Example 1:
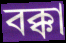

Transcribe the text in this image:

বক্কা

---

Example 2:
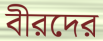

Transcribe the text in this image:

বীরদের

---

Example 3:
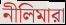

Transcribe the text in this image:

নীলিমারা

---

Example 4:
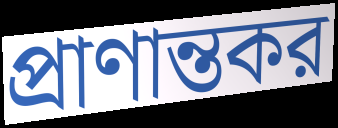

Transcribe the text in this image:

প্রাণান্তকর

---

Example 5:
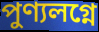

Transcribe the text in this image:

পুণ্যলগ্নে